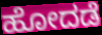
ಹೋದಡೆ